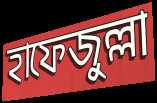
হাফেজুল্লা